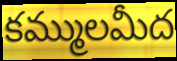
కమ్ములమీద